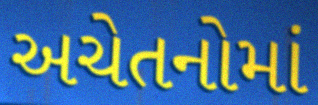
અચેતનોમાં